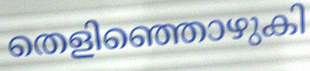
തെളിഞ്ഞൊഴുകി